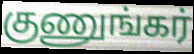
குணுங்கர்